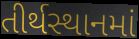
તીર્થસ્થાનમાં